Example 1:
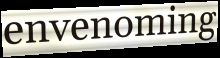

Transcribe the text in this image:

envenoming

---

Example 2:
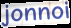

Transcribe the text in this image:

jonnoi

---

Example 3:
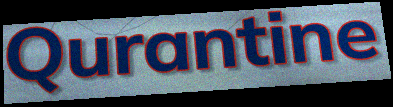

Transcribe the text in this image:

Qurantine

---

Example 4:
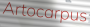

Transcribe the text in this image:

Artocarpus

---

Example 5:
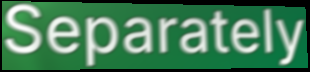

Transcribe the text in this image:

Separately